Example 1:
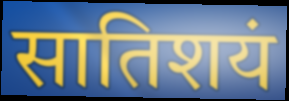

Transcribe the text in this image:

सातिशयं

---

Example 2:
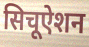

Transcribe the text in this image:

सिचूऐशन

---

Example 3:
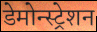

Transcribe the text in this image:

डेमोन्स्ट्रेशन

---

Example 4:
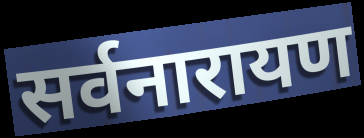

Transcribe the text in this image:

सर्वनारायण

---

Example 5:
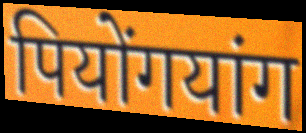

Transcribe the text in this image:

पियोंगयांग